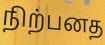
நிற்பனத